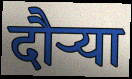
दौऱ्या